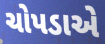
ચોપડાએ